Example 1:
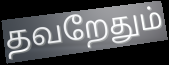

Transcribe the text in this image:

தவறேதும்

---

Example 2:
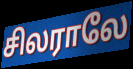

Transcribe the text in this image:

சிலராலே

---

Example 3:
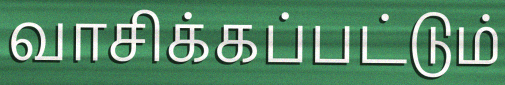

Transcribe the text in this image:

வாசிக்கப்பட்டும்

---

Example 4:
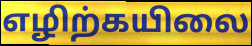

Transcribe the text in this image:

எழிற்கயிலை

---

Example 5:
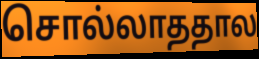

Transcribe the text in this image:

சொல்லாததால